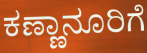
ಕಣ್ಣಾನೂರಿಗೆ